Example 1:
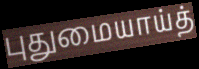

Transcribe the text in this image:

புதுமையாய்த்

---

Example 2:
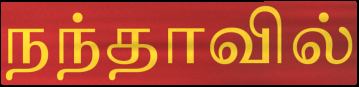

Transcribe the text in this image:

நந்தாவில்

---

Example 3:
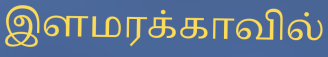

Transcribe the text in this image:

இளமரக்காவில்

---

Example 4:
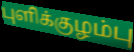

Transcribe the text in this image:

புளிக்குழம்பு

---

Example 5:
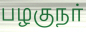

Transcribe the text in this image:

பழகுநர்